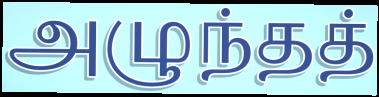
அழுந்தத்